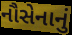
નૌસેનાનું